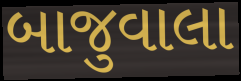
બાજુવાલા